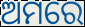
ଅମରେ